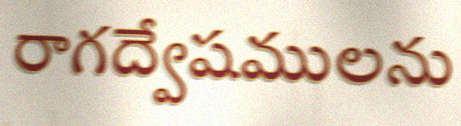
రాగద్వేషములను